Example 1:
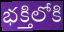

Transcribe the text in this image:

భక్తిలోకి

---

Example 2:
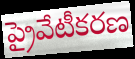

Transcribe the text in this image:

ప్రైవేటీకరణ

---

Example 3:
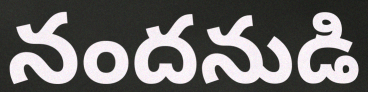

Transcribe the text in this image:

నందనుడి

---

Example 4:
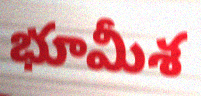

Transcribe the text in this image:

భూమీశ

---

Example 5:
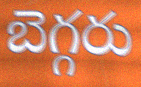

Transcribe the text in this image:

బెగ్గరు